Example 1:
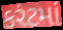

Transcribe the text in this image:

કરંટમાં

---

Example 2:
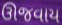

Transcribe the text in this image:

ઊજવાય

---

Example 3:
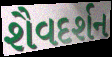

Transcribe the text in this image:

શૈવદર્શન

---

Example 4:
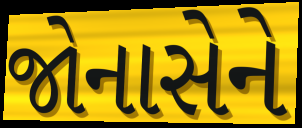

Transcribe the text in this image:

જોનાસેને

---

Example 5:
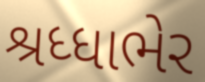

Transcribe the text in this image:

શ્રધ્ધાભેર